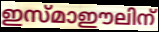
ഇസ്മാഈലിന്